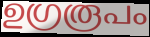
ഉഗ്രരൂപം